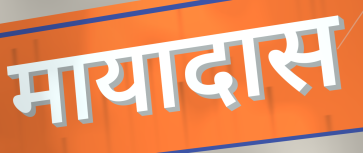
मायादास